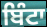
ਬਿੰਟਾ